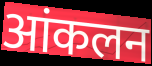
आंकलन